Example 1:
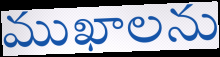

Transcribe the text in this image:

ముఖాలను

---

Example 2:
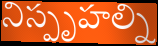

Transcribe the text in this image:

నిస్పృహల్ని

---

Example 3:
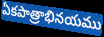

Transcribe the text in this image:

ఏకపాత్రాభినయము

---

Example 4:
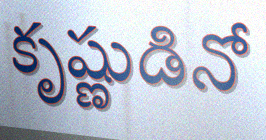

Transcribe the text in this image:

కృష్ణుడినో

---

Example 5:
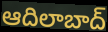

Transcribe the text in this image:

ఆదిలాబాద్